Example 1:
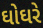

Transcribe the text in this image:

ઘોઘરે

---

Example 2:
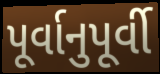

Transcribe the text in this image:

પૂર્વાનુપૂર્વી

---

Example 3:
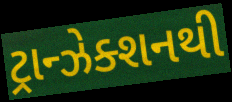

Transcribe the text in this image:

ટ્રાન્ઝેક્શનથી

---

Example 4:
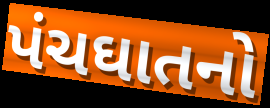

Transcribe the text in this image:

પંચઘાતનો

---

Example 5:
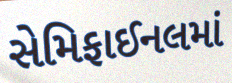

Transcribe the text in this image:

સેમિફાઈનલમાં